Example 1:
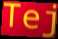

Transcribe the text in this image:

Tej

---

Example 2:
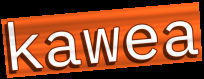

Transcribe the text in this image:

kawea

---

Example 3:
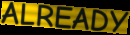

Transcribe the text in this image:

ALREADY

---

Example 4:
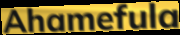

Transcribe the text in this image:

Ahamefula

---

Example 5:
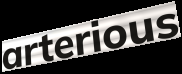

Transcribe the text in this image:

arterious